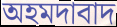
অহমদাবাদ